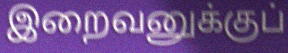
இறைவனுக்குப்